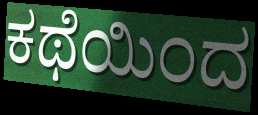
ಕಥೆಯಿಂದ